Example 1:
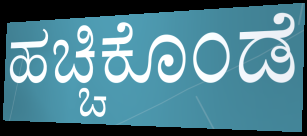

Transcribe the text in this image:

ಹಚ್ಚಿಕೊಂಡೆ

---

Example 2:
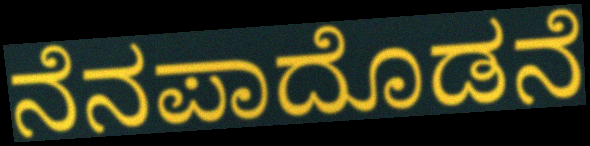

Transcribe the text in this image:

ನೆನಪಾದೊಡನೆ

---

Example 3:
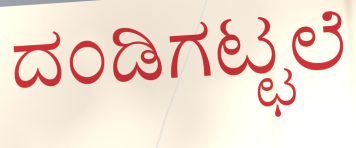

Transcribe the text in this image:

ದಂಡಿಗಟ್ಟಲೆ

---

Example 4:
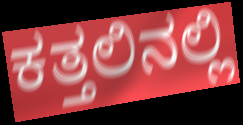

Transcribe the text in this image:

ಕತ್ತಲಿನಲ್ಲಿ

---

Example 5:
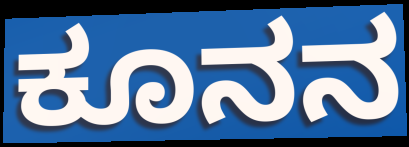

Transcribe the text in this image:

ಕೂನನ